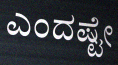
ಎಂದಷ್ಟೇ